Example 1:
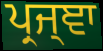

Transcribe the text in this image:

ਪ੍ਰਜ੍ਞਾ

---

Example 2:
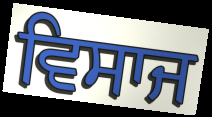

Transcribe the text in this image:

ਵਿਸਾਜ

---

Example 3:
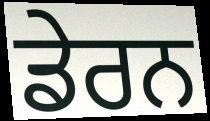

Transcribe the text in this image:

ਡੇਰਨ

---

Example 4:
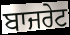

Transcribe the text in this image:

ਬਾਜਰੇਟ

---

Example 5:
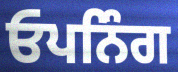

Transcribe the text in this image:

ਓਪਨਿੰਗ